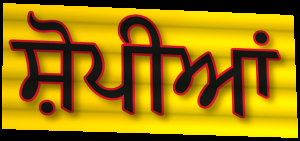
ਸ਼ੋਪੀਆਂ